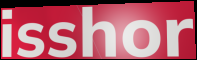
isshor